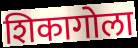
शिकागोला